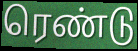
ரெண்டு